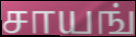
சாயங்